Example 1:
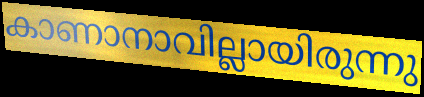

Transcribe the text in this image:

കാണാനാവില്ലായിരുന്നു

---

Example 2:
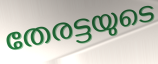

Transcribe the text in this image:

തേരട്ടയുടെ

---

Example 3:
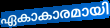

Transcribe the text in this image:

ഏകാകാരമായി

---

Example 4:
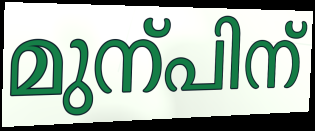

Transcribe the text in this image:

മുന്പിന്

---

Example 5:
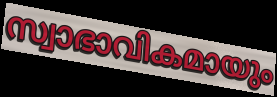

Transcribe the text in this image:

സ്വാഭാവികമായും